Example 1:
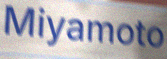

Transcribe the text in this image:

Miyamoto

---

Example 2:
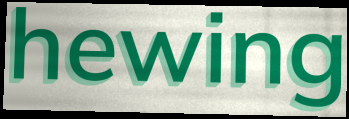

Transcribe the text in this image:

hewing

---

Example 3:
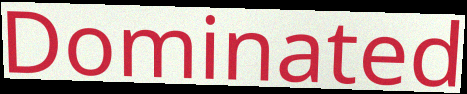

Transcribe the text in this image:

Dominated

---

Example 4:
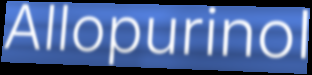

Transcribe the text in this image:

Allopurinol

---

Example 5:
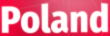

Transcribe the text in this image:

Poland